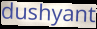
dushyant